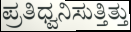
ಪ್ರತಿಧ್ವನಿಸುತ್ತಿತ್ತು